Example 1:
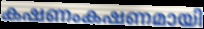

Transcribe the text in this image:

കഷണംകഷണമായി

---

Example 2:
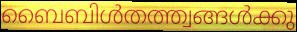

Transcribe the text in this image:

ബൈബിൾതത്ത്വങ്ങൾക്കു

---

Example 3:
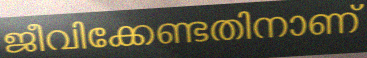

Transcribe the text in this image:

ജീവിക്കേണ്ടതിനാണ്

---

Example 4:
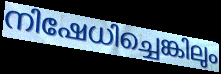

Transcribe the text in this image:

നിഷേധിച്ചെങ്കിലും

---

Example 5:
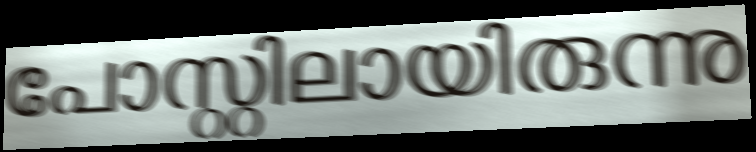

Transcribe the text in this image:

പോസ്റ്റിലായിരുന്നു